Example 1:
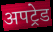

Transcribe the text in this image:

अपट्रेड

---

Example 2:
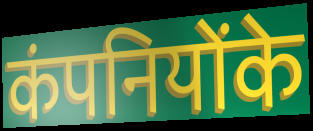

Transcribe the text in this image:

कंपनियोंके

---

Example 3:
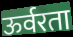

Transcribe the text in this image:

ऊर्वरता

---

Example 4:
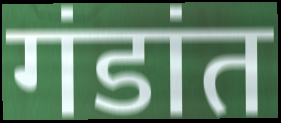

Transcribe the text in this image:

गंडांत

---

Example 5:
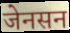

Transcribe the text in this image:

जेनसन